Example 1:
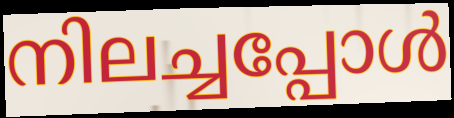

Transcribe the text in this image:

നിലച്ചപ്പോൾ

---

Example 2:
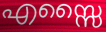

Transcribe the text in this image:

എസ്സൈ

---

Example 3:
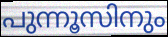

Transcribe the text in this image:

പുന്നൂസിനും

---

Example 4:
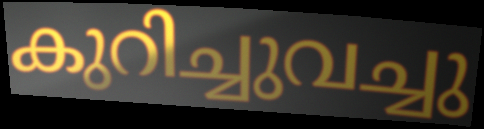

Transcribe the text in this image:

കുറിച്ചുവച്ചു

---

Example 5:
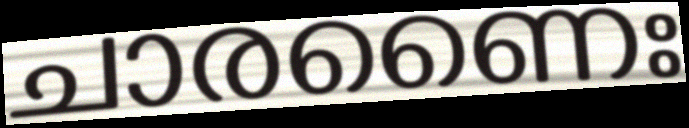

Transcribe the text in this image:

ചാരണൈഃ